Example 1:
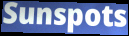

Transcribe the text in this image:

Sunspots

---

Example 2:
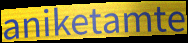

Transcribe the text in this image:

aniketamte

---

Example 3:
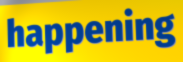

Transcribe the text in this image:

happening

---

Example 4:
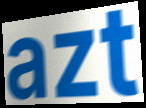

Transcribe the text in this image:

azt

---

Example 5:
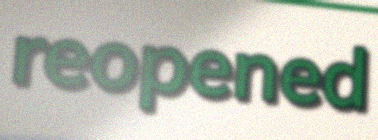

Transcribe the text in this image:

reopened